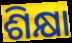
ଶିକ୍ଷା